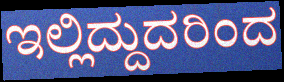
ಇಲ್ಲಿದ್ದುದರಿಂದ